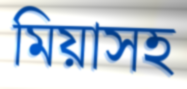
মিয়াসহ